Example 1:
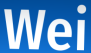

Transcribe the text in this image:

Wei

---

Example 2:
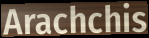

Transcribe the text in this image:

Arachchis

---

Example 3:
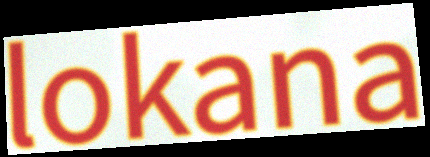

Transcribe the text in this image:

lokana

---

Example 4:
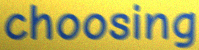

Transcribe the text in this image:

choosing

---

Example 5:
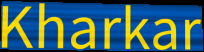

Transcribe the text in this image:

Kharkar